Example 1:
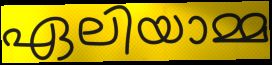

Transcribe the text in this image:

ഏലിയാമ്മ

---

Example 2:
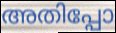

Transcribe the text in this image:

അതിപ്പോ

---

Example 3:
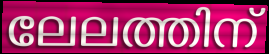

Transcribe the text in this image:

ലേലത്തിന്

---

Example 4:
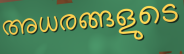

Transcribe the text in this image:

അധരങ്ങളുടെ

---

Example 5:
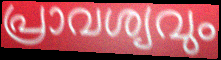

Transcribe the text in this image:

പ്രാവശ്യവും